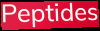
Peptides